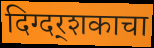
दिग्दर्शकाचा